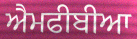
ਐਮਫੀਬੀਆ